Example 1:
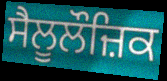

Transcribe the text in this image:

ਸੈਲੂਲੌਜ਼ਿਕ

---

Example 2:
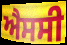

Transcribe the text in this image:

ਐਸਸੀ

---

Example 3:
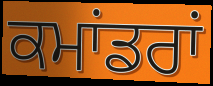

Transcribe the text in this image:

ਕਮਾਂਡਰਾਂ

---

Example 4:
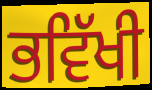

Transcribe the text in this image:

ਭਵਿੱਖੀ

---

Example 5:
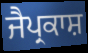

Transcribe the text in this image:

ਜੈਪ੍ਰਕਾਸ਼